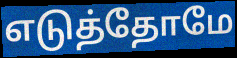
எடுத்தோமே